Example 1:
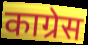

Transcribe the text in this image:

काग्रेस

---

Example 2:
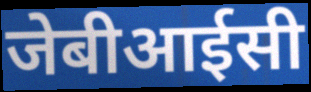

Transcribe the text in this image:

जेबीआईसी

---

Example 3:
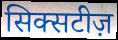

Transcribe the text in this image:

सिक्सटीज़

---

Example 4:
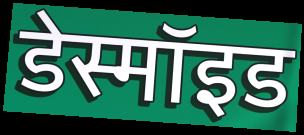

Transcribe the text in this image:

डेस्मॉइड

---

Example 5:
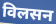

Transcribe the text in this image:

विलसन